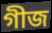
গীজ